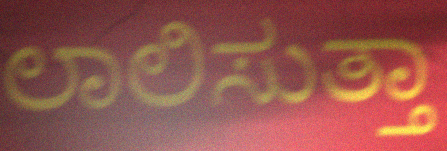
ಲಾಲಿಸುತ್ತಾ